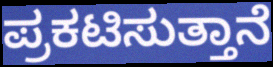
ಪ್ರಕಟಿಸುತ್ತಾನೆ